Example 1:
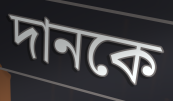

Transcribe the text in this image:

দানকে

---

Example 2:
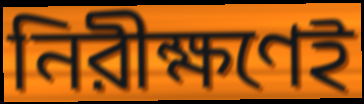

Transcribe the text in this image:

নিরীক্ষণেই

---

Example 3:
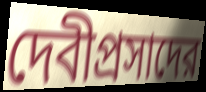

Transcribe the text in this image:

দেবীপ্রসাদের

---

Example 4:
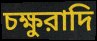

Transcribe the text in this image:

চক্ষুরাদি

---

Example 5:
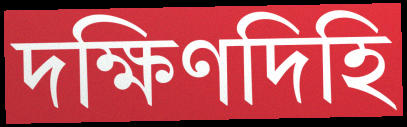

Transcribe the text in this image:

দক্ষিণদিহি